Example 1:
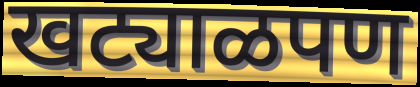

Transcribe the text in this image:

खट्याळपण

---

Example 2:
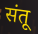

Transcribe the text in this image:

संतू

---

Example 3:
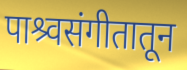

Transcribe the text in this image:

पाश्र्वसंगीतातून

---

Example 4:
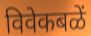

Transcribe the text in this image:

विवेकबळें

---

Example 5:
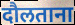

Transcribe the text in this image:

दौलताना